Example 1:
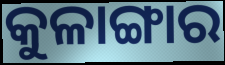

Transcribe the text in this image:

କୁଳାଙ୍ଗାର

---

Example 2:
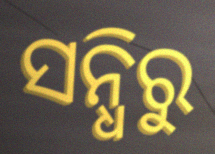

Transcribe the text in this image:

ସନ୍ଧିରୁ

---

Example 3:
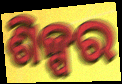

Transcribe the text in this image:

ଶିଳ୍ପର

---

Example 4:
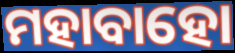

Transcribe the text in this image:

ମହାବାହୋ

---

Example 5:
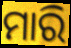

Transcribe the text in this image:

ମାରି